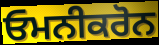
ਓਮਨੀਕਰੋਨ